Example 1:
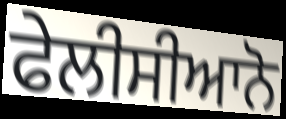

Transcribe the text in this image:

ਫੇਲੀਸੀਆਨੋ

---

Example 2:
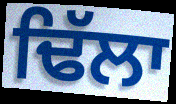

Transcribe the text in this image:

ਢਿੱਲਾ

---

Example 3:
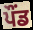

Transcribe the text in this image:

ਪੌਂਡ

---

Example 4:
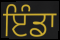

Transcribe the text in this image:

ਇੰਡਾ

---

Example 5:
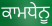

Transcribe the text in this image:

ਕਾਮਧੇਨੂ